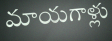
మాయగాళ్లు